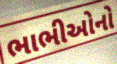
ભાભીઓનો